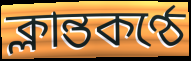
ক্লান্তকণ্ঠে